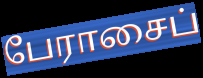
பேராசைப்